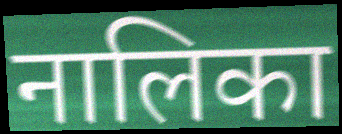
नालिका